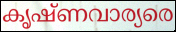
കൃഷ്ണവാര്യരെ